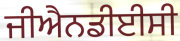
ਜੀਐਨਡੀਈਸੀ